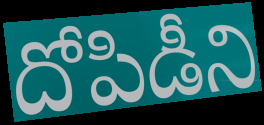
దోపిడీని